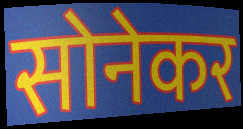
सोनेकर